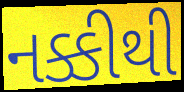
નક્કીથી